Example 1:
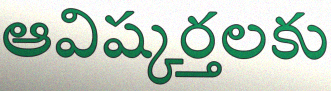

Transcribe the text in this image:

ఆవిష్కర్తలకు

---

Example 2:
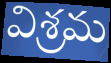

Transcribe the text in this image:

విశ్రమ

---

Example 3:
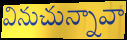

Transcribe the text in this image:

వినుచున్నావా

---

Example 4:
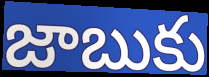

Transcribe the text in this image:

జాబుకు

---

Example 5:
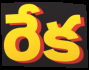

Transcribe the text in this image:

రేక